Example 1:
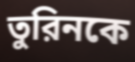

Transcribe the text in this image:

তুরিনকে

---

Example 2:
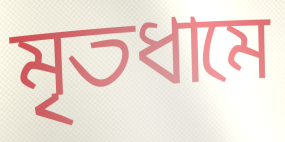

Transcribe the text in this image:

মৃতধামে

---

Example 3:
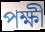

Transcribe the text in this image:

পক্ষী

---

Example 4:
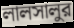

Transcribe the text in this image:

লালসালুর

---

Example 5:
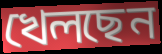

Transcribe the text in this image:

খেলছেন